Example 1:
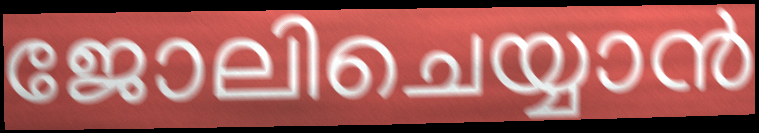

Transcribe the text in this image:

ജോലിചെയ്യാൻ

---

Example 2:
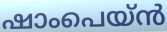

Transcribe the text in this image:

ഷാംപെയ്ൻ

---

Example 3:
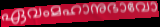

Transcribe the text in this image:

ഏവംമഹാനുഭാവോ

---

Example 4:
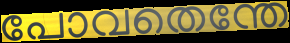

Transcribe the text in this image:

പോവതെന്തേ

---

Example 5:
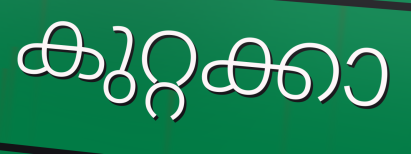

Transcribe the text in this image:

കുറ്റക്കാ